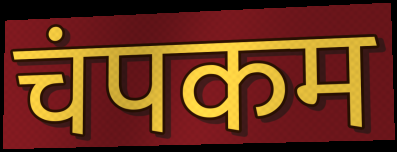
चंपकम